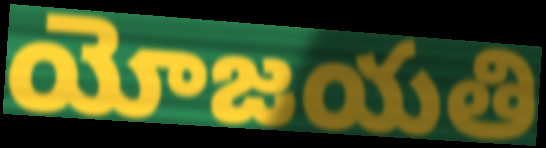
యోజయతి